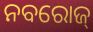
ନବରୋଜ୍